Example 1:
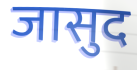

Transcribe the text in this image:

जासुद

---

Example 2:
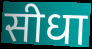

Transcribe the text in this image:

सीधा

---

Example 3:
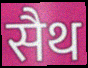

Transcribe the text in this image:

सैथ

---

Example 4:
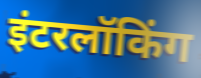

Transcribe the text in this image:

इंटरलॉकिंग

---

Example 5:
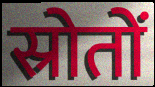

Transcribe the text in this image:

स्रोतों